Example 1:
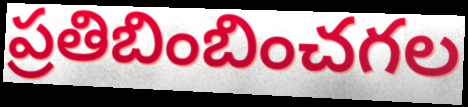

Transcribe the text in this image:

ప్రతిబింబించగల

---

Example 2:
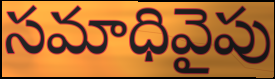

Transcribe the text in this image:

సమాధివైపు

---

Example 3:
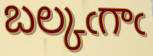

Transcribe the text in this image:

బల్కఁగాఁ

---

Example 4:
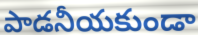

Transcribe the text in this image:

పాడనీయకుండా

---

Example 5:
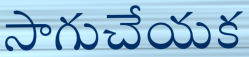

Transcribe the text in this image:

సాగుచేయక